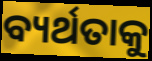
ବ୍ୟର୍ଥତାକୁ